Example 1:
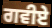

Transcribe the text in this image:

ਗਵੀਏ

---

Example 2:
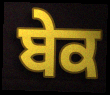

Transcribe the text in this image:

ਬੇਕ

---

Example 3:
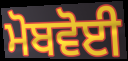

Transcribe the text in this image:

ਮੋਬਵੋਈ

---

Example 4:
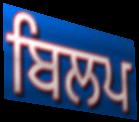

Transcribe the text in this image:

ਬਿਲਪ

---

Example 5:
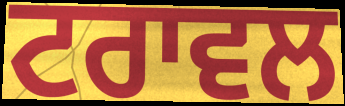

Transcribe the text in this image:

ਟਰਾਵਲ